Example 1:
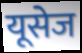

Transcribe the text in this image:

यूसेज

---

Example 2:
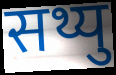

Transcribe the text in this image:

सथ्यु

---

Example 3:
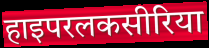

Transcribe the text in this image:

हाइपरलकसीरिया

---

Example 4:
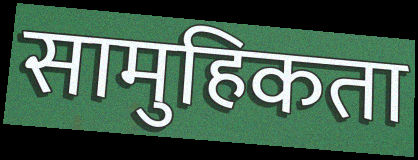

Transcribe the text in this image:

सामुहिकता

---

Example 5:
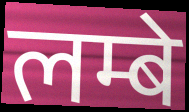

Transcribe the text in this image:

लम्बे